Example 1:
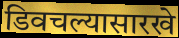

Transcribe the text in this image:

डिवचल्यासारखे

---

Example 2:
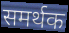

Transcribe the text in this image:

समर्थक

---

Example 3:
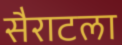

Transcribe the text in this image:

सैराटला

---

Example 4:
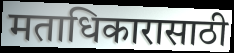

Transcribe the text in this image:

मताधिकारासाठी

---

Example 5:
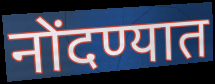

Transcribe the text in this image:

नोंदण्यात